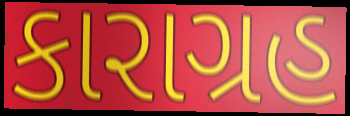
કારાગ્રહ